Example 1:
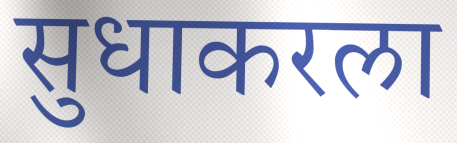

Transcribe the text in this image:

सुधाकरला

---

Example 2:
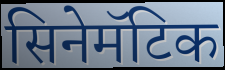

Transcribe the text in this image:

सिनेमॅटिक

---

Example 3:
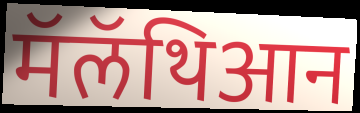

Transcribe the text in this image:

मॅलॅथिआन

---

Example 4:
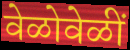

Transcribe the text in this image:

वेळोवेळीं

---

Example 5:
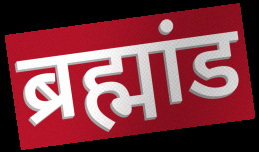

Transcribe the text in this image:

ब्रह्मांड